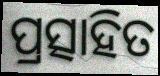
ପ୍ରତ୍ସାହିତ